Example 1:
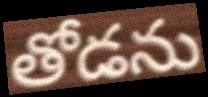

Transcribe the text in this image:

తోడను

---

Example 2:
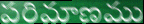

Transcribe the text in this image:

పరిమాణము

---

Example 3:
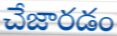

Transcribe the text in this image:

చేజారడం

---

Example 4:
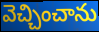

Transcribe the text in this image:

వెచ్చించాను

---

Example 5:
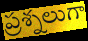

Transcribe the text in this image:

ప్రశ్నలుగా